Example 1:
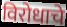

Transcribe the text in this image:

विरोधाचे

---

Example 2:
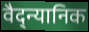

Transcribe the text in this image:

वैद्न्यानिक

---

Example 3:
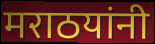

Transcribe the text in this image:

मराठयांनी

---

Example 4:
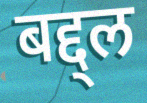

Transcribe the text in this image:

बद्द्ल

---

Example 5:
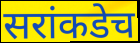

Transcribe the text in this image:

सरांकडेच